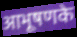
आभूषणके